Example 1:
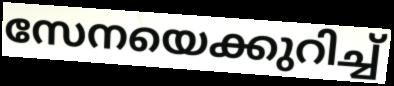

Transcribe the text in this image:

സേനയെക്കുറിച്ച്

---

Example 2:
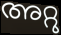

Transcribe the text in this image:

അറ്റു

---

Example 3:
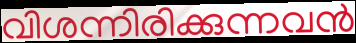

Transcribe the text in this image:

വിശന്നിരിക്കുന്നവൻ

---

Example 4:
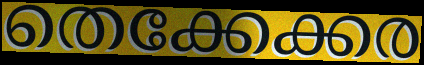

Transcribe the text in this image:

തെക്കേക്കര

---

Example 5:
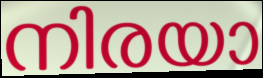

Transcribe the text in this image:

നിരയാ